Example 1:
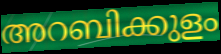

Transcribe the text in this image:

അറബിക്കുളം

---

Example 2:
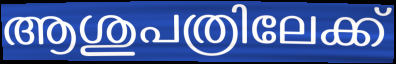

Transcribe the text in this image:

ആശുപത്രിലേക്ക്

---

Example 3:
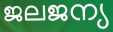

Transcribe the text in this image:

ജലജന്യ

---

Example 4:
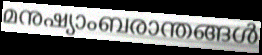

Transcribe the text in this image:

മനുഷ്യാംബരാന്തങ്ങൾ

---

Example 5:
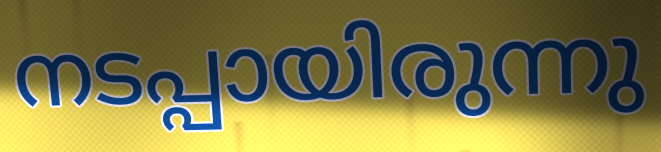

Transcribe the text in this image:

നടപ്പായിരുന്നു